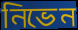
নিভেন